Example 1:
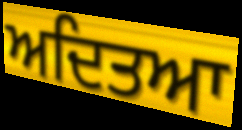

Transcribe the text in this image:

ਅਦਿਤਆ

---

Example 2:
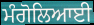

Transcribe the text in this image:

ਮੰਗੋਲਿਆਈ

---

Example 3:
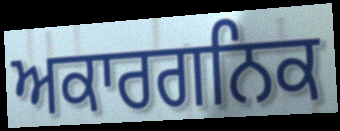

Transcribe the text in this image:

ਅਕਾਰਗਨਿਕ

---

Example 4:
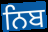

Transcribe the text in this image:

ਨਿਬ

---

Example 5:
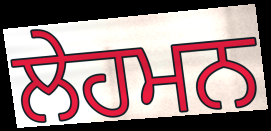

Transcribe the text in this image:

ਲੇਹਮਨ